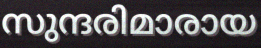
സുന്ദരിമാരായ